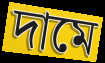
দামে